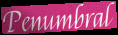
Penumbral